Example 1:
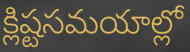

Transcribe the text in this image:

క్లిష్టసమయాల్లో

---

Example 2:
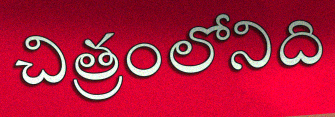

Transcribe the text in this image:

చిత్రంలోనిది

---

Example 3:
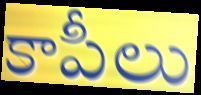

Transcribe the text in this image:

కాపీలు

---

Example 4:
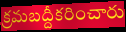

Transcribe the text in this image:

క్రమబద్దీకరించారు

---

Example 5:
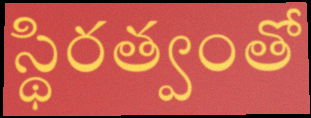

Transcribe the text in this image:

స్థిరత్వంతో